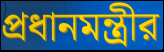
প্রধানমন্ত্রীর